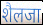
शैलजा